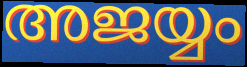
അജയ്യം